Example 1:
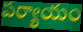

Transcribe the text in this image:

పర్యాయం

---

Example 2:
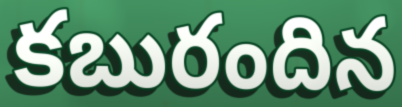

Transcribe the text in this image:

కబురందిన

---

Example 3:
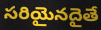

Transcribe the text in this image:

సరియైనదైతే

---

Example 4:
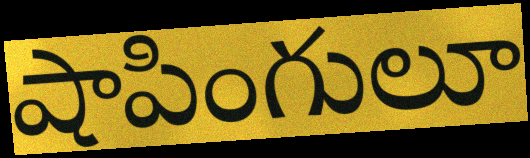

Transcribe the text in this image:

షాపింగులూ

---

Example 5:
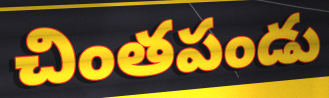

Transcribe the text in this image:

చింతపండు